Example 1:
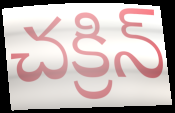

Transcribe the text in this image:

చక్రిన్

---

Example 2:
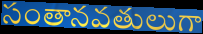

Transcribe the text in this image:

సంతానవతులుగా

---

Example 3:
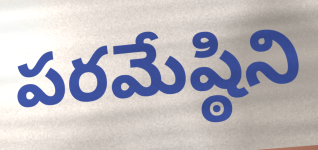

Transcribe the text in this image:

పరమేష్ఠిని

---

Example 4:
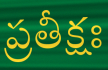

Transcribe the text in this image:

ప్రతీక్షః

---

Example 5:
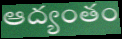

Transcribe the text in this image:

ఆద్యంతం